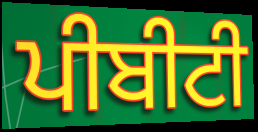
ਪੀਬੀਟੀ